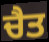
ਚੈਤ